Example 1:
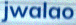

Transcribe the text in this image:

jwalao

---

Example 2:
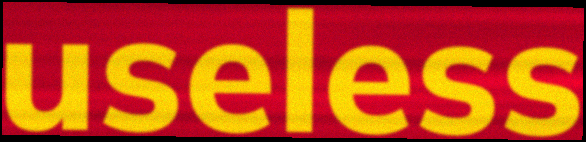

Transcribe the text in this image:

useless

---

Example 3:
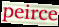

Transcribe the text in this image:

peirce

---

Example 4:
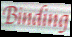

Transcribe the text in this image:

Binding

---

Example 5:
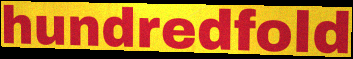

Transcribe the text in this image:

hundredfold